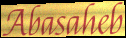
Abasaheb